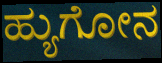
ಹ್ಯುಗೋನ